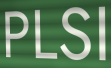
PLSI